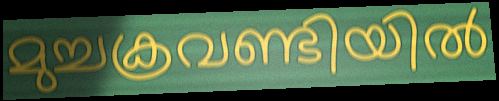
മുച്ചക്രവണ്ടിയിൽ